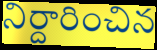
నిర్దారించిన